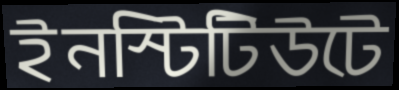
ইনস্টিটিউটে